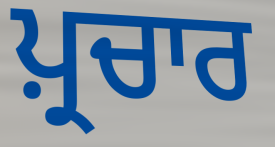
ਪ਼੍ਰਚਾਰ